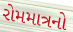
રોમમાત્રનો